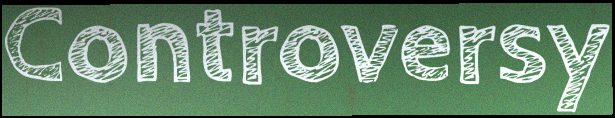
Controversy